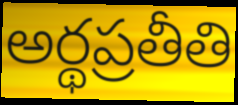
అర్థప్రతీతి